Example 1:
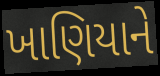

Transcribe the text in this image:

ખાણિયાને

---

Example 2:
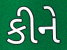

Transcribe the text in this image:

કીને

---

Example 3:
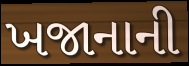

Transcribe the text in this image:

ખજાનાની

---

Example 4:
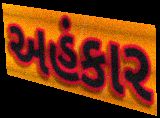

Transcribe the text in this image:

અહંકાર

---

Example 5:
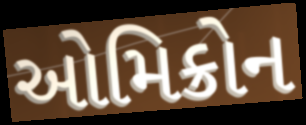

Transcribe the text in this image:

ઓમિક્રોન